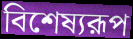
বিশেষ্যরূপ